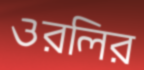
ওরলির